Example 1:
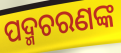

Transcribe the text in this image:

ପଦ୍ମଚରଣଙ୍କ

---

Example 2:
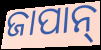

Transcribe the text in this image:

ଜାପାନ୍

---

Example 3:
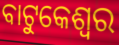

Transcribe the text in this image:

ବାଟୁକେଶ୍ୱର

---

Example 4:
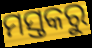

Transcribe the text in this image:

ମସ୍ତକରୁ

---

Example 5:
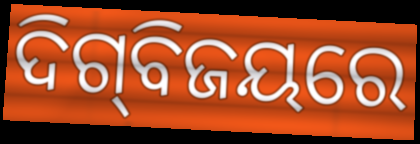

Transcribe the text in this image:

ଦିଗ୍‌ବିଜୟରେ